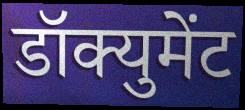
डॉक्युमेंट